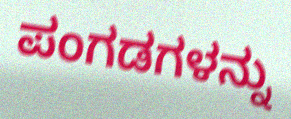
ಪಂಗಡಗಳನ್ನು